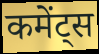
कमेंट्स